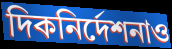
দিকনির্দেশনাও